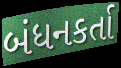
બંધનકર્તા